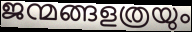
ജന്മങ്ങളത്രയും